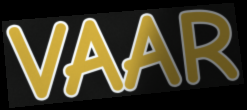
VAAR